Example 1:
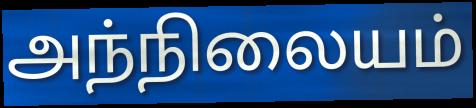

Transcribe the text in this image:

அந்நிலையம்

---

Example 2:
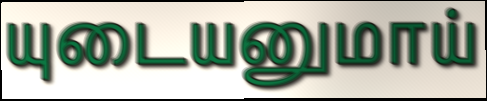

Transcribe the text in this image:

யுடையனுமாய்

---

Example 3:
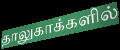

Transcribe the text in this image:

தாலுகாக்களில்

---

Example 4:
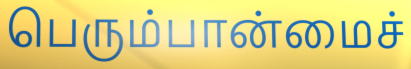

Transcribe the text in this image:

பெரும்பான்மைச்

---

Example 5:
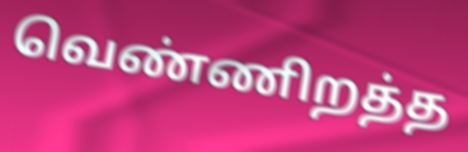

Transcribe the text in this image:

வெண்ணிறத்த